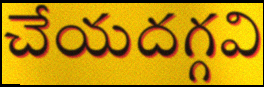
చేయదగ్గవి